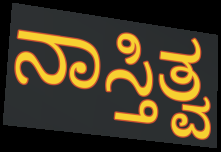
ನಾಸ್ತಿತ್ವ